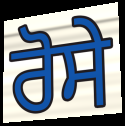
ਰੋਸੇ